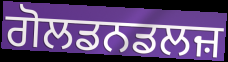
ਗੋਲਡਨਡਲਜ਼